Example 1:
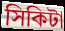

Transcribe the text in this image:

সিকিটা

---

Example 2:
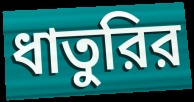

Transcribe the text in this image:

ধাতুরির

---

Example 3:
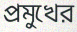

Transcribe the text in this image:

প্রমুখের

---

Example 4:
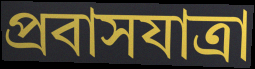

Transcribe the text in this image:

প্রবাসযাত্রা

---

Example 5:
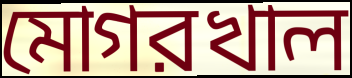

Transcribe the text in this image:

মোগরখাল